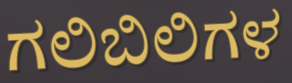
ಗಲಿಬಿಲಿಗಳ